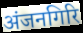
अंजनगिरि